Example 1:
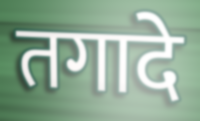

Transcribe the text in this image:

तगादे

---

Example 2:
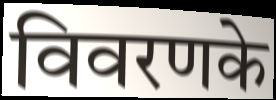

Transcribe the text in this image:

विवरणके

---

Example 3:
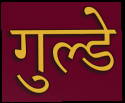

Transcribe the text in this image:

गुल्डे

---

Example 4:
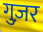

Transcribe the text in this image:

गुज़र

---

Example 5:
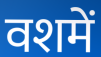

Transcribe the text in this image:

वशमें